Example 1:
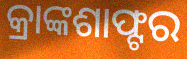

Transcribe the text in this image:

କ୍ରାଙ୍କଶାଫ୍ଟର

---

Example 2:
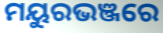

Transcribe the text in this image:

ମୟୁରଭଞ୍ଜରେ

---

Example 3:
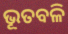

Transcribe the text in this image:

ଭୂତବଳି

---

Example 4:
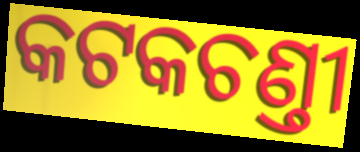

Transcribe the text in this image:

କଟକଚଣ୍ତୀ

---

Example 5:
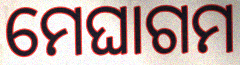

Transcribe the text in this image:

ମେଘାଗମ